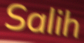
Salih